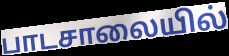
பாடசாலையில்